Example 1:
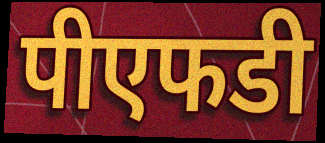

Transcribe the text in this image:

पीएफडी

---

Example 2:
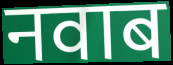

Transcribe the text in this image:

नवाब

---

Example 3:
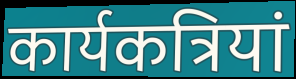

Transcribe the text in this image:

कार्यकत्रियां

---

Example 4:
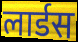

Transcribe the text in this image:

लार्डस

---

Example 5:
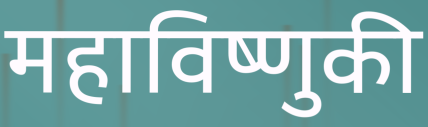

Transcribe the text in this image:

महाविष्णुकी